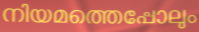
നിയമത്തെപ്പോലും